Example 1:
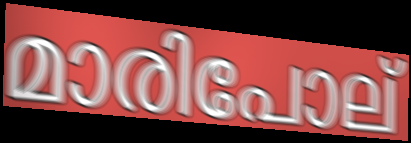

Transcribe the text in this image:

മാരിപോല്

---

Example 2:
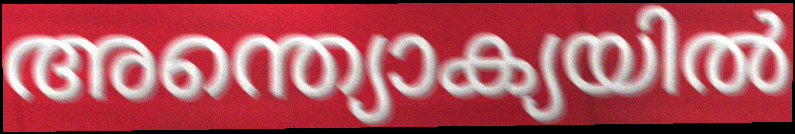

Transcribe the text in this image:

അന്ത്യൊക്യയിൽ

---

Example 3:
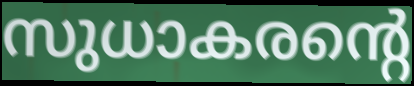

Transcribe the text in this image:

സുധാകരന്റെ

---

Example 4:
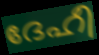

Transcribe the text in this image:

ദേഹീ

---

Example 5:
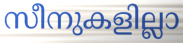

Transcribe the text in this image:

സീനുകളില്ലാ